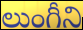
లుంగీని